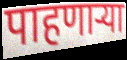
पाहणार्‍या